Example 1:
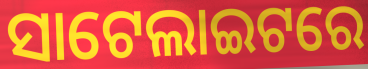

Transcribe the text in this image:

ସାଟେଲାଇଟରେ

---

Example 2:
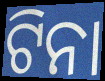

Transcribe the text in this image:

ଟିନା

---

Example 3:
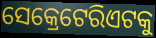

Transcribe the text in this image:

ସେକ୍ରେଟେରିଏଟକୁ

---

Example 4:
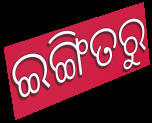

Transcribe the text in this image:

ଇଙ୍ଗିତରୁ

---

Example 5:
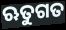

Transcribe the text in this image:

ଋତୁଗତ